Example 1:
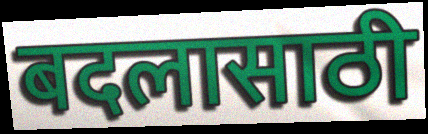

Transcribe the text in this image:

बदलासाठी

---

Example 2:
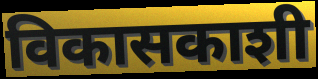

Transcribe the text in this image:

विकासकाशी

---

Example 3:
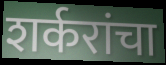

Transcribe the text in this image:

शर्करांचा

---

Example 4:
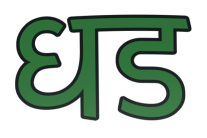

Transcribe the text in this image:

धड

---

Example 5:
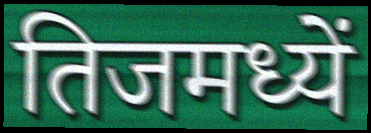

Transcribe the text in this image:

तिजमध्यें